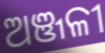
ଅଞ୍ଜଳୀ